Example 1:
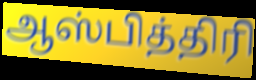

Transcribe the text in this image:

ஆஸ்பித்திரி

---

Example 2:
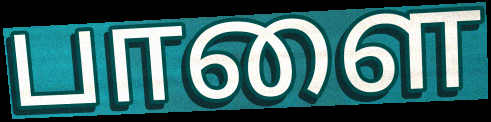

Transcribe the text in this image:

பாளை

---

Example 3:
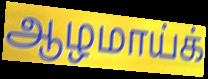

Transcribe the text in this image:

ஆழமாய்க்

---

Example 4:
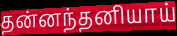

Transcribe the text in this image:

தன்னந்தனியாய்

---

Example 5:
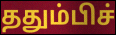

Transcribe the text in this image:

ததும்பிச்